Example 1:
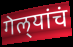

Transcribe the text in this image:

गेल्यांचं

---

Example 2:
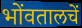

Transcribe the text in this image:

भोंवतालचें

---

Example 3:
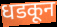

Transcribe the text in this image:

धडकून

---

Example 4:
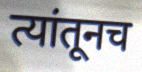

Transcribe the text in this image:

त्यांतूनच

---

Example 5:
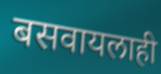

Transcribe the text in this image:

बसवायलाही